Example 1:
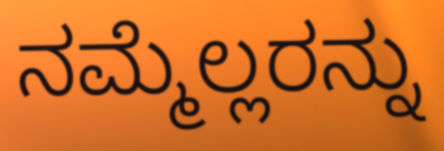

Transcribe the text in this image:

ನಮ್ಮೆಲ್ಲರನ್ನು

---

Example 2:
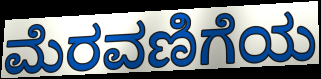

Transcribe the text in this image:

ಮೆರವಣಿಗೆಯ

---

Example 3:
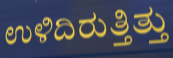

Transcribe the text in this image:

ಉಳಿದಿರುತ್ತಿತ್ತು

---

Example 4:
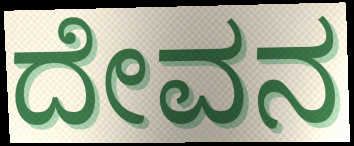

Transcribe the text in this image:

ದೇವನ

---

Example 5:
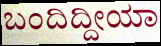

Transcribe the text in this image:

ಬಂದಿದ್ದೀಯಾ